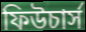
ফিউচার্স